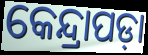
କେନ୍ଦ୍ରାପଡ଼ା